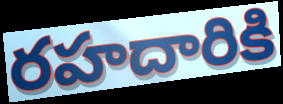
రహదారికి